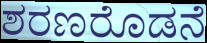
ಶರಣರೊಡನೆ